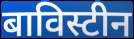
बाविस्टीन